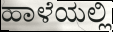
ಹಾಳೆಯಲ್ಲಿ